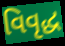
વિવૃદ્ધ